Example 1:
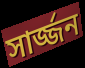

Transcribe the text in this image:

সার্জ্জন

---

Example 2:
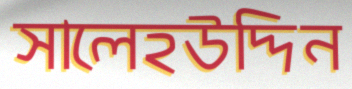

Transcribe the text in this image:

সালেহউদ্দিন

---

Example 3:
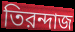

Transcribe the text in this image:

তিরন্দাজ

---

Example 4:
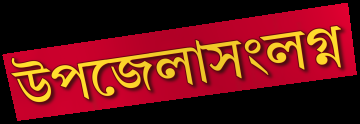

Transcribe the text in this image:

উপজেলাসংলগ্ন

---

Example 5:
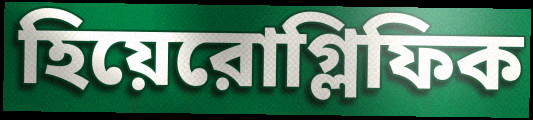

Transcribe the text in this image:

হিয়েরোগ্লিফিক